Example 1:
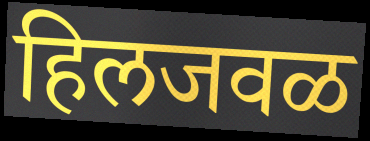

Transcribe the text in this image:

हिलजवळ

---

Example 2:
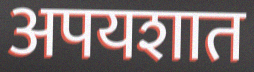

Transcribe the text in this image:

अपयशात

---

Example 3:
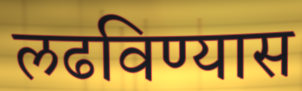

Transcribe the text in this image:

लढविण्यास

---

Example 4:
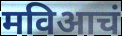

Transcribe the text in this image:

मविआचं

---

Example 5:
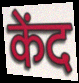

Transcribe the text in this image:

केंद